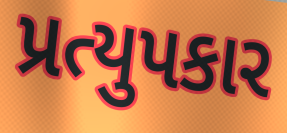
પ્રત્યુપકાર